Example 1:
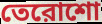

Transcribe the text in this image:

তেরোশো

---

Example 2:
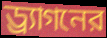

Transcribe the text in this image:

ড্র্যাগনের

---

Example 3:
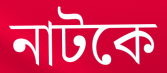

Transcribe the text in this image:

নাটকে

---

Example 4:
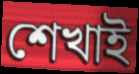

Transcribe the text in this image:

শেখাই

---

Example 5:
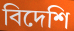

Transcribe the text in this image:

বিদেশি